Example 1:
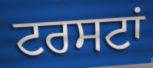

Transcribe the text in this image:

ਟਰਸਟਾਂ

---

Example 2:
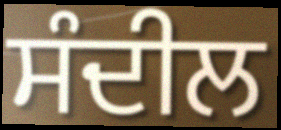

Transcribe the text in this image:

ਸੰਦੀਲ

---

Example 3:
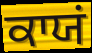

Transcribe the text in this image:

ਕਾਯਂ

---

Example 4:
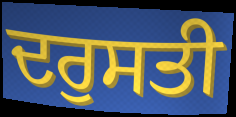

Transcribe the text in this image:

ਦਰੁਸਤੀ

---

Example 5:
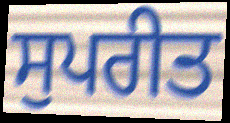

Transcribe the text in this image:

ਸੁਪਰੀਤ